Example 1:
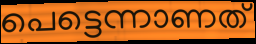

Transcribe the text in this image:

പെട്ടെന്നാണത്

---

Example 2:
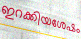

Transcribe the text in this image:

ഇറക്കിയശേഷം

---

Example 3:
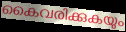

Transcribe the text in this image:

കൈവരിക്കുകയും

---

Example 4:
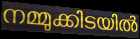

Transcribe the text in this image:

നമ്മുക്കിടയിൽ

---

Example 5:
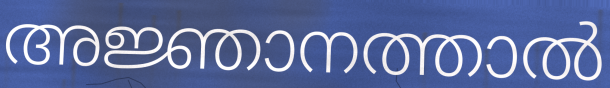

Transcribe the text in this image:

അജ്ഞാനത്താൽ